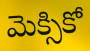
మెక్సికో